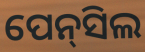
ପେନ୍‍ସିଲ